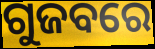
ଗୁଜବରେ